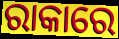
ରାକାରେ